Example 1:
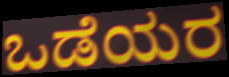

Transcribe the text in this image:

ಒಡೆಯರ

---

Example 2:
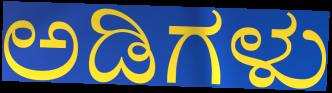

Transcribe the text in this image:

ಅಡಿಗಳು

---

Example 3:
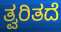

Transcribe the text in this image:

ತ್ವರಿತದೆ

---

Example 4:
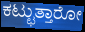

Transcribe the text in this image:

ಕಟ್ಟುತ್ತಾರೋ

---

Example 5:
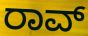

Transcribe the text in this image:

ರಾವ್